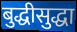
बुद्धीसुद्धा